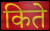
किते